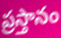
ప్రస్తానం